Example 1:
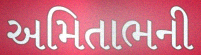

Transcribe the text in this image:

અમિતાભની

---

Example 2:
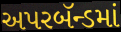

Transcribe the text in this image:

અપરબૅન્ડમાં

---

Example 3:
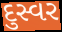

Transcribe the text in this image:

દુસ્વર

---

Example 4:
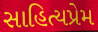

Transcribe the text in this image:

સાહિત્યપ્રેમ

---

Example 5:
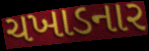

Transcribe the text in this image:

ચખાડનાર